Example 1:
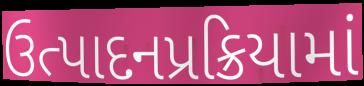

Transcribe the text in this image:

ઉત્પાદનપ્રક્રિયામાં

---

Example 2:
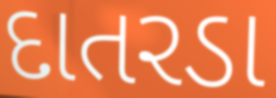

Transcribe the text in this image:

દાતરડા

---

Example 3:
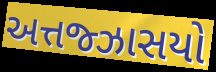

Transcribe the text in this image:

અત્તજ્ઝાસયો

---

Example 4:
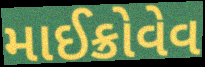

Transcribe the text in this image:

માઈક્રોવેવ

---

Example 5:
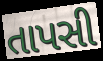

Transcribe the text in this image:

તાપસી